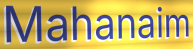
Mahanaim